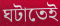
ঘটাতেই